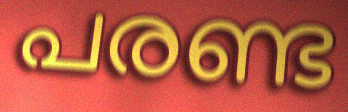
പരണ്ട